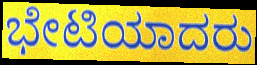
ಭೇಟಿಯಾದರು